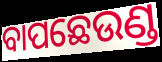
ବାପଛେଉଣ୍ଡ